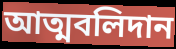
আত্মবলিদান